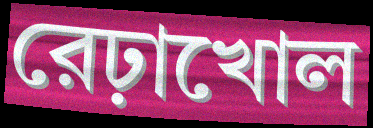
রেঢ়াখোল